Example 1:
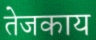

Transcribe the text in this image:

तेजकाय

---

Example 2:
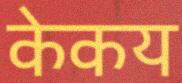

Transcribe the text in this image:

केकय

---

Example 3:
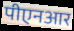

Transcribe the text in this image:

पीएनआर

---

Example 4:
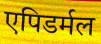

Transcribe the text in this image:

एपिडर्मल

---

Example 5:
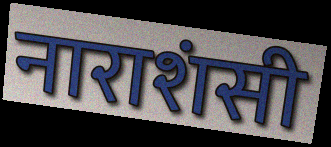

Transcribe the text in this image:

नाराशंसी